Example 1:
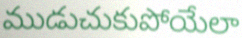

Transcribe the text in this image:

ముడుచుకుపోయేలా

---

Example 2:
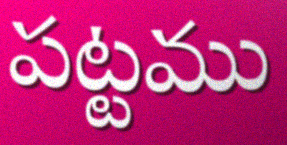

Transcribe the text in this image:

పట్టము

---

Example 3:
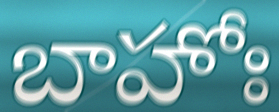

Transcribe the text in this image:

బాహోః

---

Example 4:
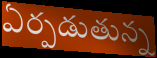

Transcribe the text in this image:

ఏర్పడుతున్న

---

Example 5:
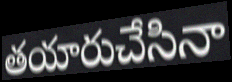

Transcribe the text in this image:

తయారుచేసినా